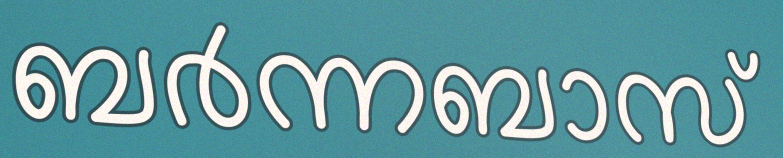
ബർന്നബാസ്